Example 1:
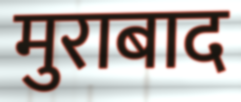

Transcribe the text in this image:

मुराबाद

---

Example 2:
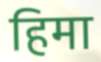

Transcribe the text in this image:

हिमा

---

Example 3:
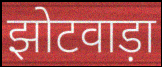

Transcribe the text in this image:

झोटवाड़ा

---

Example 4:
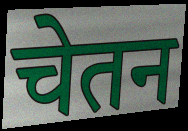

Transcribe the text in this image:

चेतन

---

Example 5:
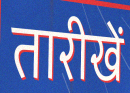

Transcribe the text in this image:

तारीखें